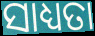
ସାଧ୍ୟତା